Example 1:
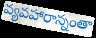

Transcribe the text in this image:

వ్యవహారాన్నంతా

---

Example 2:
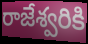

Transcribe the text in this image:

రాజేశ్వరికి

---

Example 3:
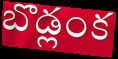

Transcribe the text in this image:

బొడ్లంక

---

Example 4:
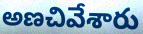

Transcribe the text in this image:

అణచివేశారు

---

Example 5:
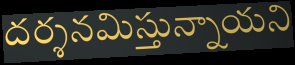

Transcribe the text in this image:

దర్శనమిస్తున్నాయని